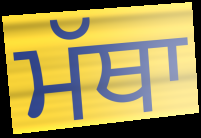
ਮੱਥਾ